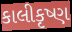
કાલીકૃષ્ણ